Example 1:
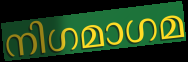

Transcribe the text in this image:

നിഗമാഗമ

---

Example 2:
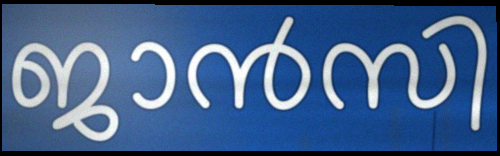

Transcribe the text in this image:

ജാൻസി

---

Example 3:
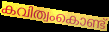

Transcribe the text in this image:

കവിത്വംകൊണ്ട്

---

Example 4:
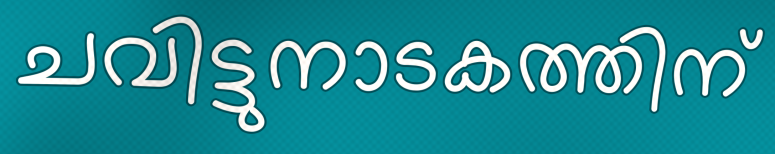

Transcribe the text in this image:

ചവിട്ടുനാടകത്തിന്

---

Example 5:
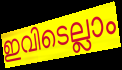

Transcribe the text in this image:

ഇവിടെല്ലാം